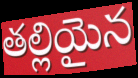
తల్లియైన